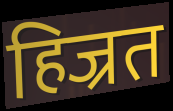
हिज्रत